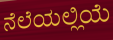
ನೆಲೆಯಲ್ಲಿಯೆ